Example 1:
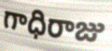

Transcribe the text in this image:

గాధిరాజు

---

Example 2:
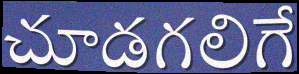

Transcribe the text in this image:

చూడగలిగే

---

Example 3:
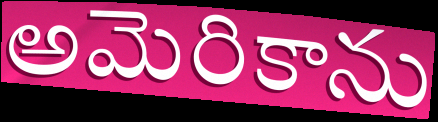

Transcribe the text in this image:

అమెరికాను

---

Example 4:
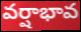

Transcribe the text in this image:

వర్షాభావ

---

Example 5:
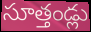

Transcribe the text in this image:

సూత్తండ్లు